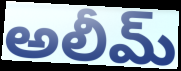
అలీమ్